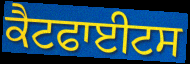
ਕੈਟਫਾਈਟਸ